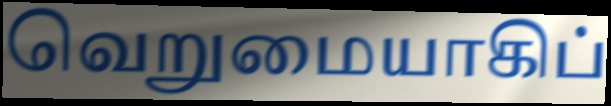
வெறுமையாகிப்